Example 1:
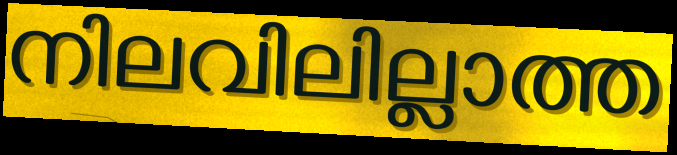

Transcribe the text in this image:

നിലവിലില്ലാത്ത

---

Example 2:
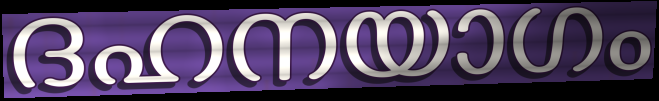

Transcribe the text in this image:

ദഹനയാഗം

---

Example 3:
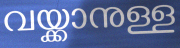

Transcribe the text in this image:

വയ്ക്കാനുള്ള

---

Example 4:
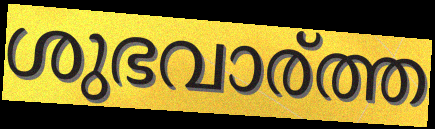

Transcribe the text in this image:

ശുഭവാര്ത്ത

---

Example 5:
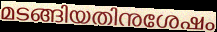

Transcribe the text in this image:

മടങ്ങിയതിനുശേഷം